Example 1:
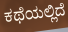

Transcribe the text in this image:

ಕಥೆಯಲ್ಲಿದೆ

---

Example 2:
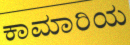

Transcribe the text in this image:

ಕಾಮಾರಿಯ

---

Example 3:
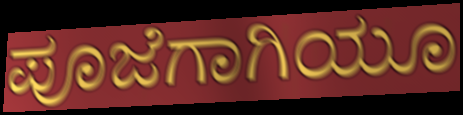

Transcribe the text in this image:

ಪೂಜೆಗಾಗಿಯೂ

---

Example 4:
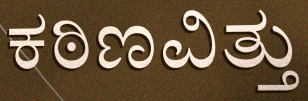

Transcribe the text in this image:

ಕಠಿಣವಿತ್ತು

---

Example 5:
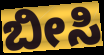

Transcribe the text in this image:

ಬೀಸಿ